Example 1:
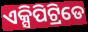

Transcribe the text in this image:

ଏକ୍ସିପିଟ୍ରିଡେ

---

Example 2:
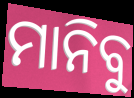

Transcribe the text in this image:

ମାନିବୁ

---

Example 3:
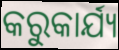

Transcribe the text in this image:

କରୁକାର୍ଯ୍ୟ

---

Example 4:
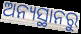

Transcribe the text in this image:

ଅନ୍ୟସ୍ଥାନରୁ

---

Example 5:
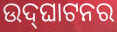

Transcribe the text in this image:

ଉଦ୍‍ଘାଟନର